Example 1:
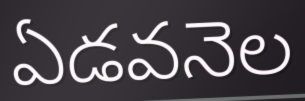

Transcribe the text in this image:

ఏడవనెల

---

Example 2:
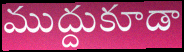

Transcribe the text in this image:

ముద్దుకూడా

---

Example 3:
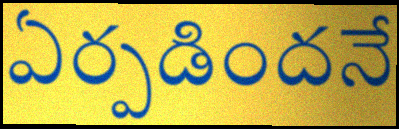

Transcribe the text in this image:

ఏర్పడిందనే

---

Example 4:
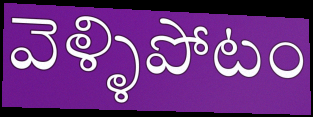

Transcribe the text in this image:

వెళ్ళిపోటం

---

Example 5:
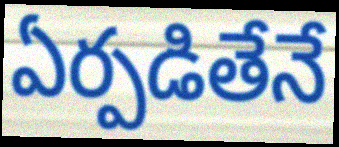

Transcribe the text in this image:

ఏర్పడితేనే